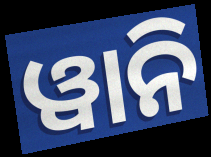
ୱାନି